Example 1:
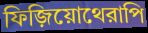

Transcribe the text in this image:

ফিজ়িয়োথেরাপি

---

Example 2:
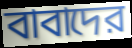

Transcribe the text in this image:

বাবাদের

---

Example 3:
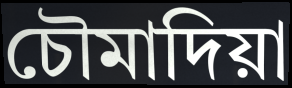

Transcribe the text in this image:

চৌমাদিয়া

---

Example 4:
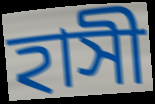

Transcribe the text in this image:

হাসী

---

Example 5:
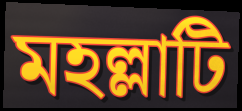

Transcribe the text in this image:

মহল্লাটি